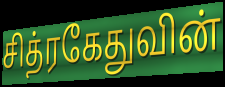
சித்ரகேதுவின்